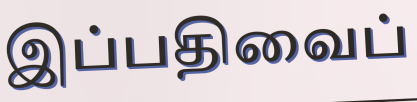
இப்பதிவைப்